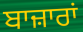
ਬਾਜ਼ਾਰਾਂ